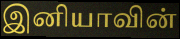
இனியாவின்